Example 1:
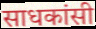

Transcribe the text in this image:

साधकांसी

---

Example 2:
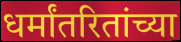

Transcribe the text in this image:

धर्मांतरितांच्या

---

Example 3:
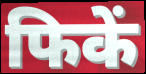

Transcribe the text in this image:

फिकें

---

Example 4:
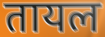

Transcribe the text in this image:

तायल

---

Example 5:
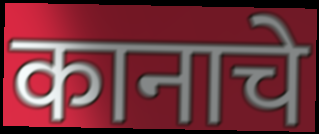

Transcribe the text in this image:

कानाचे